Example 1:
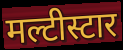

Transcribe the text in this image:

मल्टीस्टार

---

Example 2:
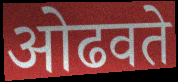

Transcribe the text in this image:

ओढवते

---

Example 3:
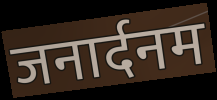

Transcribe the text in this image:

जनार्दनम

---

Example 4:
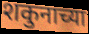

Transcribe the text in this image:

शकुनाच्या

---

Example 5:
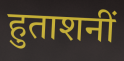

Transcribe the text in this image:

हुताशनीं